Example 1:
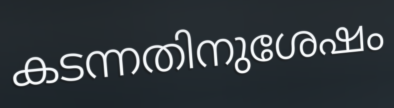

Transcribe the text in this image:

കടന്നതിനുശേഷം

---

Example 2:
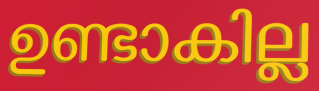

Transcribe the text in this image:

ഉണ്ടാകില്ല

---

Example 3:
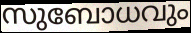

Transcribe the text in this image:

സുബോധവും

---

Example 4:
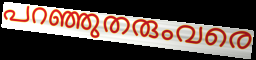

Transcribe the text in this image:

പറഞ്ഞുതരുംവരെ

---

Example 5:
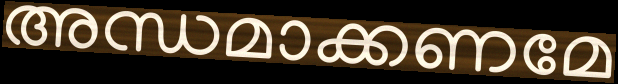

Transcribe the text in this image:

അന്ധമാക്കണമേ